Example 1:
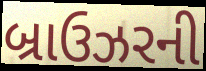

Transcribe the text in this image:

બ્રાઉઝરની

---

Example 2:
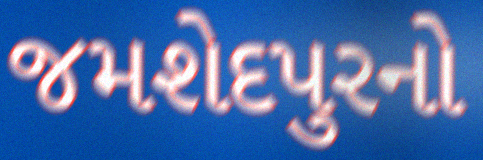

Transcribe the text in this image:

જમશેદપુરનો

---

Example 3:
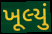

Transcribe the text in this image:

ખૂલ્યું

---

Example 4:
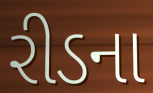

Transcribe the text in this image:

રીડના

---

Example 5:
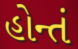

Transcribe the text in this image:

હોન્તં